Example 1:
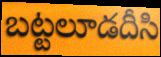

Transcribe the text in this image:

బట్టలూడదీసి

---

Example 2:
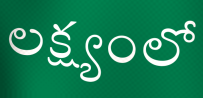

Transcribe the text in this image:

లక్ష్యంలో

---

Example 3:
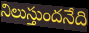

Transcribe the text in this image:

నిలుస్తుందనేది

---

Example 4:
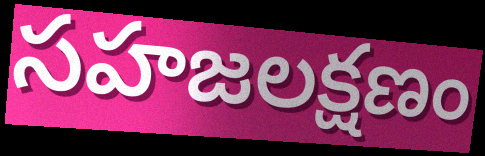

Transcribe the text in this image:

సహజలక్షణం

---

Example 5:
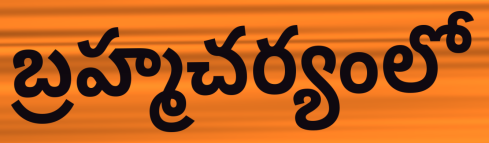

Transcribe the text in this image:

బ్రహ్మచర్యంలో